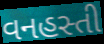
વનહસ્તી